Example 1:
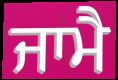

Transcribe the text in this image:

ਜਾਮੈ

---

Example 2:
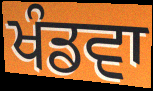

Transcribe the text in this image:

ਖੰਡਵਾ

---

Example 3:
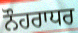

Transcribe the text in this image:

ਨੌਹਰਾਧਰ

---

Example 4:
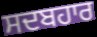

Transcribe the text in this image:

ਸਦਬਹਾਰ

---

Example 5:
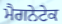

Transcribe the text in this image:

ਮੈਗਨੇਟੇਕ